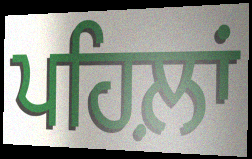
ਪਹਿਲ਼ਾਂ